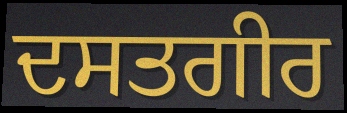
ਦਸਤਗੀਰ